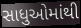
સાધુઓમાંથી